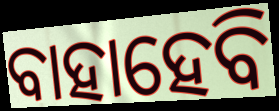
ବାହାହେବି